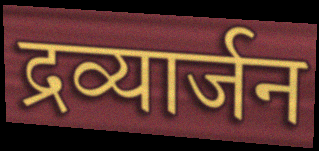
द्रव्यार्जन